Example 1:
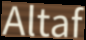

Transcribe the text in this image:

Altaf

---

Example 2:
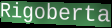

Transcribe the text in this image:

Rigoberta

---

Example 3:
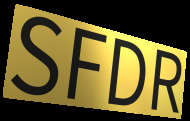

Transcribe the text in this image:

SFDR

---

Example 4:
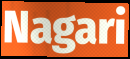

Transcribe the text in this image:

Nagari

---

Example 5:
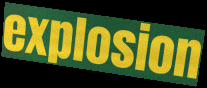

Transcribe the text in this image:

explosion